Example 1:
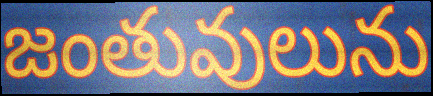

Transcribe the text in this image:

జంతువులును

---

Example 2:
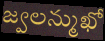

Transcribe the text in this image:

జ్వలన్ముఖో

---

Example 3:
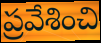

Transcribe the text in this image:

ప్రవేశించి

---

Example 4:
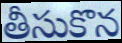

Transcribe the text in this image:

తీసుకొన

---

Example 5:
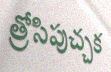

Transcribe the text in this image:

త్రోసిపుచ్చక